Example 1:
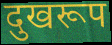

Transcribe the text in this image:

दुखरूप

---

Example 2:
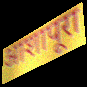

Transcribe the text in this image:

आशापूरा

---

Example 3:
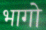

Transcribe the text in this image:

भागो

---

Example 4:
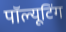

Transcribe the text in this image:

पॉल्यूटिंग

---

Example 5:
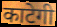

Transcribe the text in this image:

काटेगी